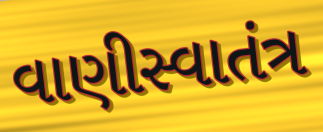
વાણીસ્વાતંત્ર